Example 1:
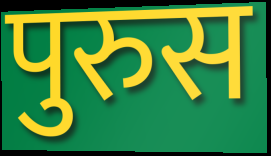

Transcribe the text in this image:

पुरुस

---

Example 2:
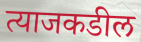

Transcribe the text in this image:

त्याजकडील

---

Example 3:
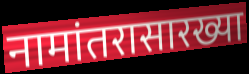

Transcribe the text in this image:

नामांतरासारख्या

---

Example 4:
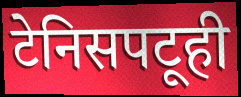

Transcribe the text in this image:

टेनिसपटूही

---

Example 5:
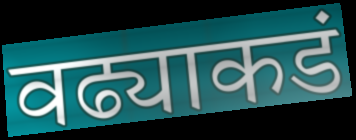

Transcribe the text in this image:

वढ्याकडं